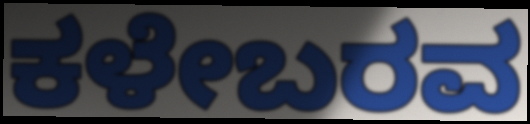
ಕಳೇಬರವ